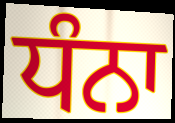
ਧੰਨਾ